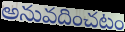
అనువదించటం